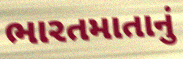
ભારતમાતાનું